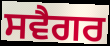
ਸਵੈਗਰ